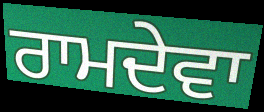
ਰਾਮਦੇਵਾ